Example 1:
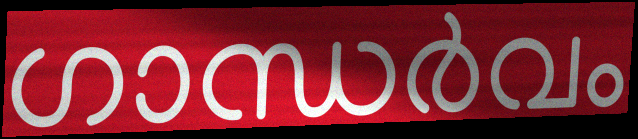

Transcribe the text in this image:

ഗാന്ധർവം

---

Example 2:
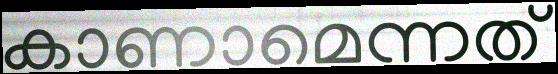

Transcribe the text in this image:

കാണാമെന്നത്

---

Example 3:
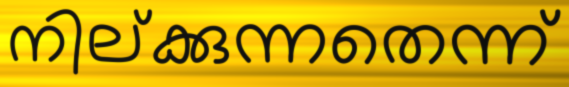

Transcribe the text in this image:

നില്ക്കുന്നതെന്ന്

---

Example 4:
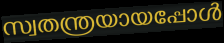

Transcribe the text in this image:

സ്വതന്ത്രയായപ്പോൾ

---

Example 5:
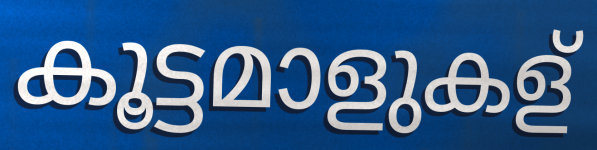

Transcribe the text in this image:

കൂട്ടമാളുകള്